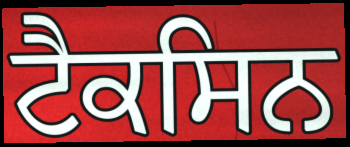
ਟੈਕਸਿਨ